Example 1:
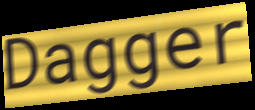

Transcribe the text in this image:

Dagger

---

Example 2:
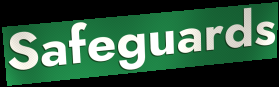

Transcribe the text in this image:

Safeguards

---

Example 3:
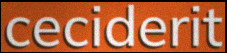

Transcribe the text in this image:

ceciderit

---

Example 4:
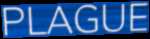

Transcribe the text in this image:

PLAGUE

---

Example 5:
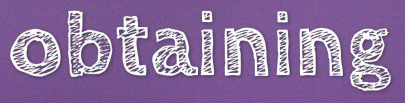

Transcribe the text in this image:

obtaining